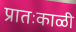
प्रातःकाळी